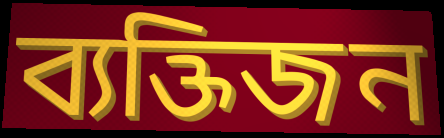
ব্যক্তিজন